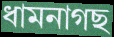
ধামনাগছ